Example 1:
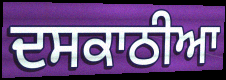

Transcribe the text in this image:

ਦਸਕਾਠੀਆ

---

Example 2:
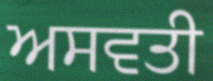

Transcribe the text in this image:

ਅਸਵਤੀ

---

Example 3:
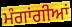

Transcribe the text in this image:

ਮੰਗਾਂਗੀਆਂ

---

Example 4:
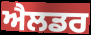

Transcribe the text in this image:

ਐਲਡਰ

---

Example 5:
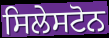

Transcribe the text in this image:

ਸਿਲੇਸਟੋਨ